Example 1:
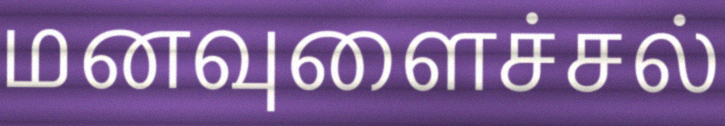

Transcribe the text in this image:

மனவுளைச்சல்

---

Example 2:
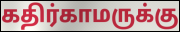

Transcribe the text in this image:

கதிர்காமருக்கு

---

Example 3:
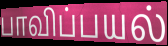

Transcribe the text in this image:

பாவிப்பயல்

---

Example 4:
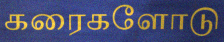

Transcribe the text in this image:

கரைகளோடு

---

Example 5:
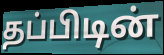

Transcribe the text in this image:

தப்பிடின்